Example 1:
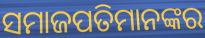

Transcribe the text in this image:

ସମାଜପତିମାନଙ୍କର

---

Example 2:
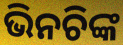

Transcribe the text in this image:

ଭିନଚିଙ୍କ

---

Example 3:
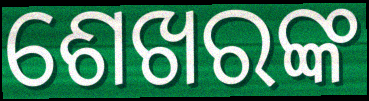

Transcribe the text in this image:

ଶେଖରଙ୍କ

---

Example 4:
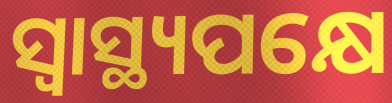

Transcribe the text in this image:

ସ୍ଵାସ୍ଥ୍ୟପକ୍ଷେ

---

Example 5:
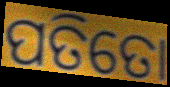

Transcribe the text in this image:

ପତିତୋ